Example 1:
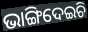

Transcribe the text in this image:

ଭାଙ୍ଗିଦେଇଚି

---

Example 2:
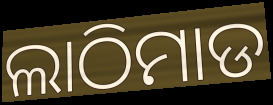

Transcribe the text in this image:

ଲାଠିମାଡ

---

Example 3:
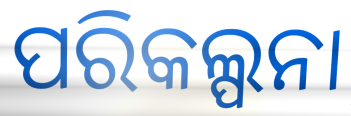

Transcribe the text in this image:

ପରିକଲ୍ପନା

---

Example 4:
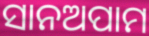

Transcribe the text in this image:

ସାନଅପାମ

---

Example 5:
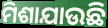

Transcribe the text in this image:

ମିଶାଯାଉଛି